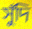
সুঁদি